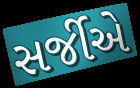
સર્જીએ